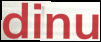
dinu